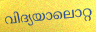
വിദ്യയാലൊറ്റ